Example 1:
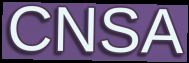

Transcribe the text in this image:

CNSA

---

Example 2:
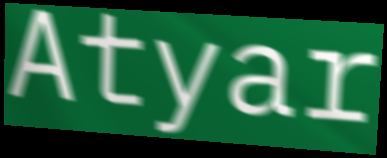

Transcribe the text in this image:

Atyar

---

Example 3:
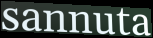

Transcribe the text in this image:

sannuta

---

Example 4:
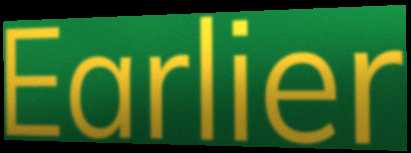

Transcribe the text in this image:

Earlier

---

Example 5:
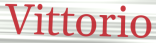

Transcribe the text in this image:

Vittorio